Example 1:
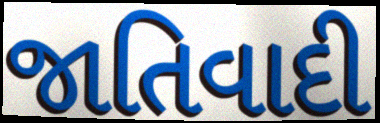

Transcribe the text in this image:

જાતિવાદી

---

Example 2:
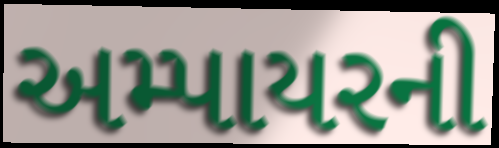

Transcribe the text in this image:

અમ્પાયરની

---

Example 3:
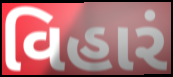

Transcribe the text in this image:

વિહારં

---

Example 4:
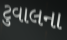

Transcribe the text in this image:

ટુવાલના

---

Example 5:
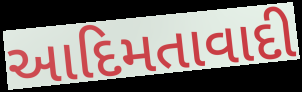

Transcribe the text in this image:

આદિમતાવાદી